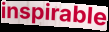
inspirable